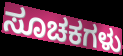
ಸೂಚಕಗಳು